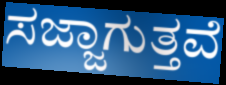
ಸಜ್ಜಾಗುತ್ತವೆ